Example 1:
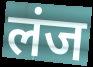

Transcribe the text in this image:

लंज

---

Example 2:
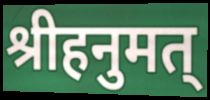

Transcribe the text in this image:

श्रीहनुमत्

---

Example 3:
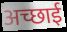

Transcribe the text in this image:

अच्छाई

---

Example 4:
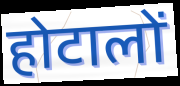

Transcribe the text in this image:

होटालों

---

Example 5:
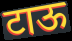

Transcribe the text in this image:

टाऊ